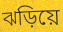
ঝড়িয়ে